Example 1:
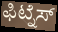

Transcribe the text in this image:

ಫಿಟ್ನೆಸ್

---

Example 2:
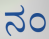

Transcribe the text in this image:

ನಂ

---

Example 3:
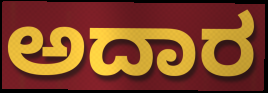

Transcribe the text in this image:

ಅದಾರ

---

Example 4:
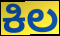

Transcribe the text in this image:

ಕಿಲ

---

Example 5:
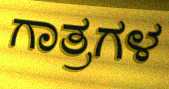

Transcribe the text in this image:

ಗಾತ್ರಗಳ